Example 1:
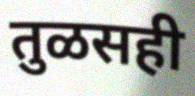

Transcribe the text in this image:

तुळसही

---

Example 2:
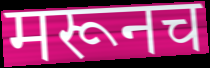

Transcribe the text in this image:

मरूनच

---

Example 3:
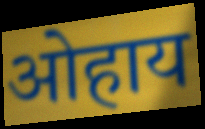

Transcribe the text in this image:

ओहाय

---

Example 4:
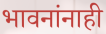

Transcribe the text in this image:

भावनांनाही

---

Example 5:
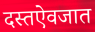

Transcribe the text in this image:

दस्तऐवजात